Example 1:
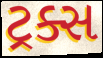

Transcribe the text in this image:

ટ્રક્સ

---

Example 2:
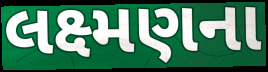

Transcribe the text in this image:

લક્ષ્મણના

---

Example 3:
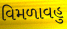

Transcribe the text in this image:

વિમળાવહુ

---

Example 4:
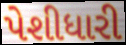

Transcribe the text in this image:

પેશીધારી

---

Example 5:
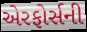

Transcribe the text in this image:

એરફોર્સની